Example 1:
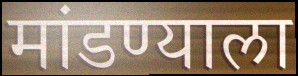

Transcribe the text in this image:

मांडण्याला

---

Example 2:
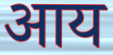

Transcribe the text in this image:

आय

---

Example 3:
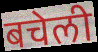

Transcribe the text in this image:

बचेली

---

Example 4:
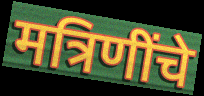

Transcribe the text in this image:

मत्रिणींचे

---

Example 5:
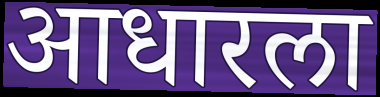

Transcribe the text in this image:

आधारला